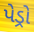
પેડ્રો